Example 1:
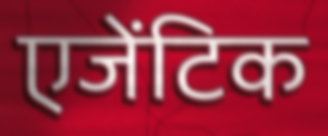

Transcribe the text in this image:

एजेंटिक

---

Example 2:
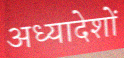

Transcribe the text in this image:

अध्यादेशों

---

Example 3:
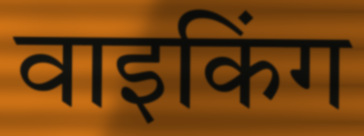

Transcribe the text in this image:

वाइकिंग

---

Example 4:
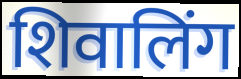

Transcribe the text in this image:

शिवालिंग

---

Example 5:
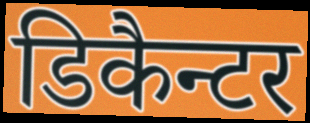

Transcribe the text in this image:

डिकैन्टर